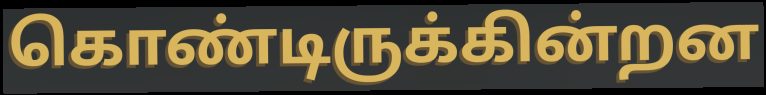
கொண்டிருக்கின்றன